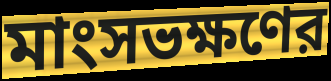
মাংসভক্ষণের